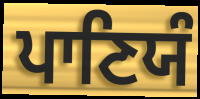
ਪਾਣਿਯੰ